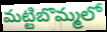
మట్టిబొమ్మలో